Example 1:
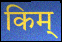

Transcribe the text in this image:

किम्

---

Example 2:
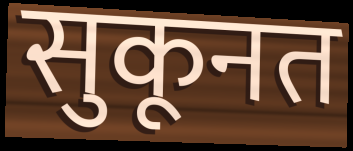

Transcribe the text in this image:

सुकूनत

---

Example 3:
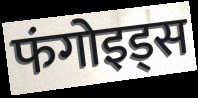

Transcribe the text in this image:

फंगोइड्स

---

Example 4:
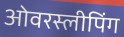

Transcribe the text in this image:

ओवरस्लीपिंग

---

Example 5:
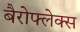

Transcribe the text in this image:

बैरोफ्लेक्स